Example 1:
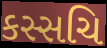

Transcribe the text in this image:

કસ્સચિ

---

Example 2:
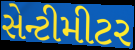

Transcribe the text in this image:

સેન્ટીમીટર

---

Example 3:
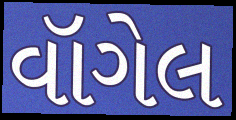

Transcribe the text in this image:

વૉગેલ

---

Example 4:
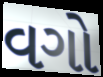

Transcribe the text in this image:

વગો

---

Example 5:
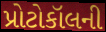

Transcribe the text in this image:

પ્રોટોકૉલની